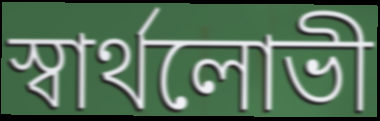
স্বার্থলোভী